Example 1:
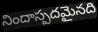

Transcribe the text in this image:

నిందాస్పదమైనది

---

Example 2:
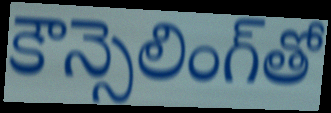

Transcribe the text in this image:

కౌన్సెలింగ్‌తో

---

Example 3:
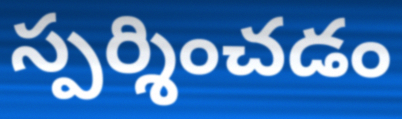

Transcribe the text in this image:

స్పర్శించడం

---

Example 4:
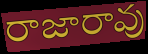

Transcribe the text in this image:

రాజారావు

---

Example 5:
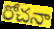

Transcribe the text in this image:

రోచనా